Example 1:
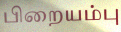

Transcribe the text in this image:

பிறையம்பு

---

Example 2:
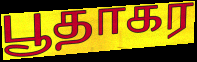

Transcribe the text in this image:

பூதாகர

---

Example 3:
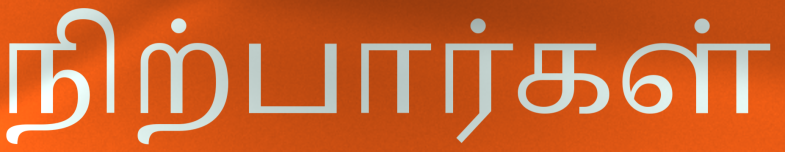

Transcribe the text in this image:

நிற்பார்கள்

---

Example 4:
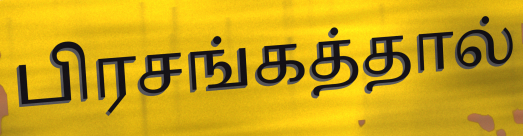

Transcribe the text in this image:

பிரசங்கத்தால்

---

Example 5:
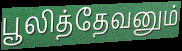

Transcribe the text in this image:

பூலித்தேவனும்